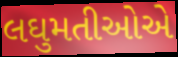
લઘુમતીઓએ